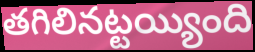
తగిలినట్టయ్యింది